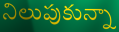
నిలుపుకున్నా